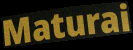
Maturai